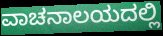
ವಾಚನಾಲಯದಲ್ಲಿ